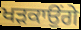
ਖੜਕਾਉਂਗੇ